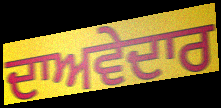
ਦਾਅਵੇਦਾਰ